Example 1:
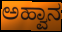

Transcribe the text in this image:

ಅಹ್ವಾನ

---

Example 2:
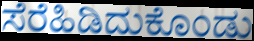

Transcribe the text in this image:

ಸೆರೆಹಿಡಿದುಕೊಂಡು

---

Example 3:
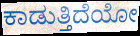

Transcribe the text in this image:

ಕಾಡುತ್ತಿದೆಯೋ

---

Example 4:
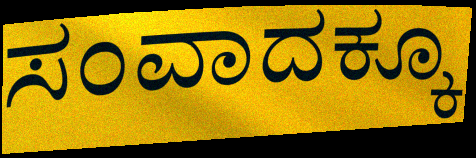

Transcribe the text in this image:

ಸಂವಾದಕ್ಕೂ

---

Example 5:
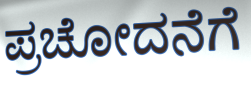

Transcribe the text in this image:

ಪ್ರಚೋದನೆಗೆ